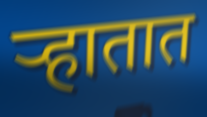
ऱ्हातात